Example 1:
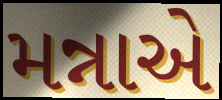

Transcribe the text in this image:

મન્નાએ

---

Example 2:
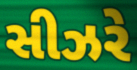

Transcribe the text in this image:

સીઝરે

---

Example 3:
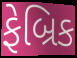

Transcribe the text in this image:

ફેબ્રિક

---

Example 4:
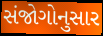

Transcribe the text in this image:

સંજોગોનુસાર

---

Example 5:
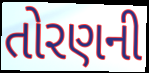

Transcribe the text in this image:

તોરણની